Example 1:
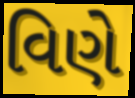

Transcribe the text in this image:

વિણે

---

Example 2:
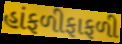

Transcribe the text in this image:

હાંફળીફાફળી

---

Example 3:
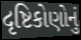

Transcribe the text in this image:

દૃષ્ટિકોણોનું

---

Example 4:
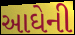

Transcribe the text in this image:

આઘેની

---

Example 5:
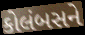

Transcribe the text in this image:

કોલંબસને